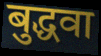
बुद्धवा